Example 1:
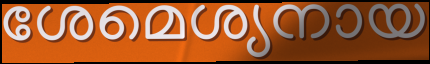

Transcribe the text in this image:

ശേമെശ്യനായ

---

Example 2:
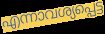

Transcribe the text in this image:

എന്നാവശ്യപ്പെട്ട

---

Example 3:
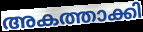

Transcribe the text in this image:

അകത്താക്കി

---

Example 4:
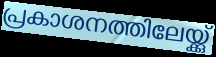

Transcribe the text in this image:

പ്രകാശനത്തിലേയ്ക്കു്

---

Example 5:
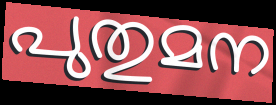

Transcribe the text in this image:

പുതുമന